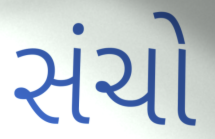
સંચો